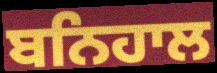
ਬਨਿਹਾਲ